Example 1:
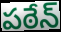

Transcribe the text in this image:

పఠేన్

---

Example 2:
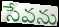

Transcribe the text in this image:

సేవను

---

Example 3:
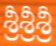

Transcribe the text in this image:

శ్రీశ్రీశ్రీ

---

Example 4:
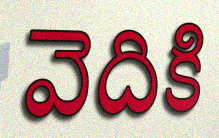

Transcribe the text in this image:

వెదికి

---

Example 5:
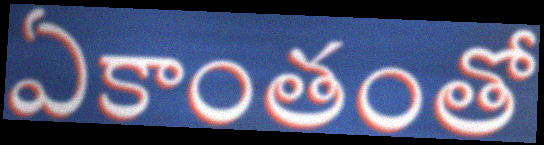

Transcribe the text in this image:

ఏకాంతంతో